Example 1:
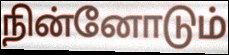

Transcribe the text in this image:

நின்னோடும்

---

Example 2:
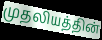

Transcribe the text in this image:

முதலியத்தின்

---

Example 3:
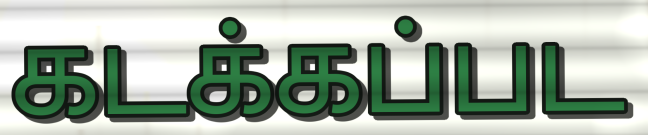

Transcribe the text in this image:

கடக்கப்பட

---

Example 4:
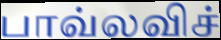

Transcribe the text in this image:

பாவ்லவிச்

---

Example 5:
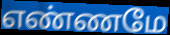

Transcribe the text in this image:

எண்ணமே